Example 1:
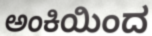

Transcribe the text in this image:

ಅಂಕಿಯಿಂದ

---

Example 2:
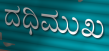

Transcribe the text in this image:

ದಧಿಮುಖ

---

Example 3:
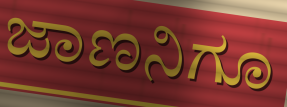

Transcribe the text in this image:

ಜಾಣನಿಗೂ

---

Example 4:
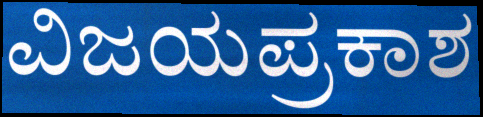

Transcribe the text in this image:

ವಿಜಯಪ್ರಕಾಶ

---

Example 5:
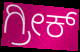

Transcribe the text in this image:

ಗ್ರೀಕ್